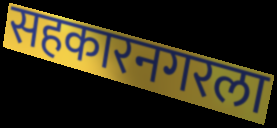
सहकारनगरला